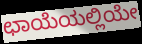
ಛಾಯೆಯಲ್ಲಿಯೇ